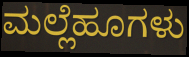
ಮಲ್ಲೆಹೂಗಳು